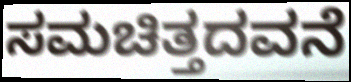
ಸಮಚಿತ್ತದವನೆ